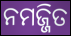
ନମଜ୍ଜିତ